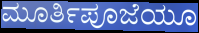
ಮೂರ್ತಿಪೂಜೆಯೂ